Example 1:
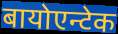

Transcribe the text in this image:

बायोएन्टेक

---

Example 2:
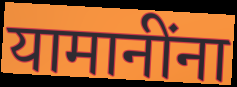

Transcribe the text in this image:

यामानींना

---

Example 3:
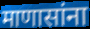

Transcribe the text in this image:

माणासांना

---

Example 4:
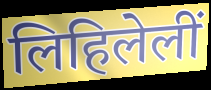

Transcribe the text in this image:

लिहिलेलीं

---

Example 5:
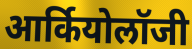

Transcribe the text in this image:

आर्कियोलॉजी